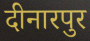
दीनारपुर